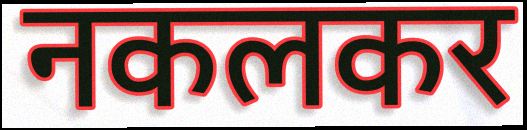
नकलकर